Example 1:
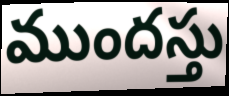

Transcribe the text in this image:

ముందస్తు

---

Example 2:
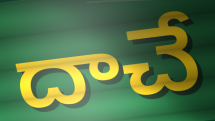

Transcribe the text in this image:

దాచే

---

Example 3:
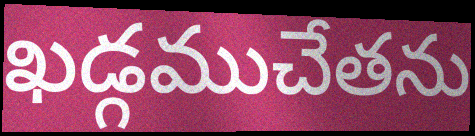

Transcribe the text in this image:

ఖడ్గముచేతను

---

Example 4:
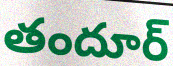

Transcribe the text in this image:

తందూర్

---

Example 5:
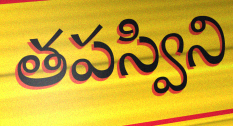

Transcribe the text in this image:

తపస్విని